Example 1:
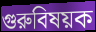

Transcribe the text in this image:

গুরুবিষয়ক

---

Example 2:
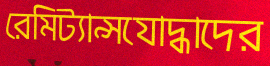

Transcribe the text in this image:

রেমিট্যান্সযোদ্ধাদের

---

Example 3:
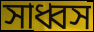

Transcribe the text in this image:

সাধ্বস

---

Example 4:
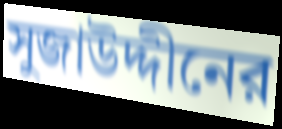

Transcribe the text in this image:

সুজাউদ্দীনের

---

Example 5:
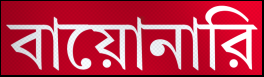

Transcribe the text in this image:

বায়োনারি